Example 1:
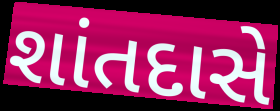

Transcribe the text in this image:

શાંતદાસે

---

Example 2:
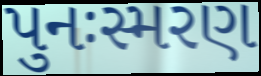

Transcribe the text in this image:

પુનઃસ્મરણ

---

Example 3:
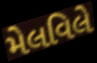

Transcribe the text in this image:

મેલવિલે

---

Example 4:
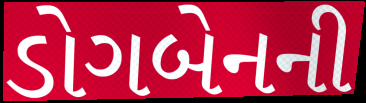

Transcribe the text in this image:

ડોગબેનની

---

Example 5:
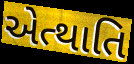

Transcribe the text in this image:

એત્થાતિ